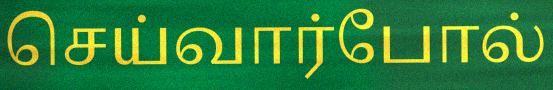
செய்வார்போல்